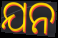
ଯନ